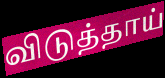
விடுத்தாய்